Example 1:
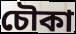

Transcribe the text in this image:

চৌকা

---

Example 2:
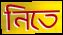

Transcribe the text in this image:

নিতে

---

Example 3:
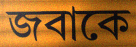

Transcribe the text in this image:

জবাকে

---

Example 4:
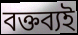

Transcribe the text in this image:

বক্তব্যই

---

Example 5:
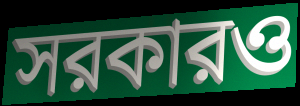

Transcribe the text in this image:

সরকারও